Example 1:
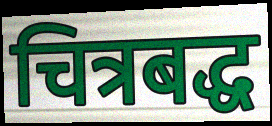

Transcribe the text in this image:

चित्रबद्ध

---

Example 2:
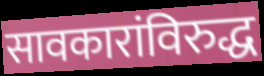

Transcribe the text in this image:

सावकारांविरुद्ध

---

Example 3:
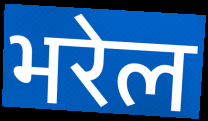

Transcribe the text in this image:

भरेल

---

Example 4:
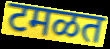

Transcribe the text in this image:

टमळत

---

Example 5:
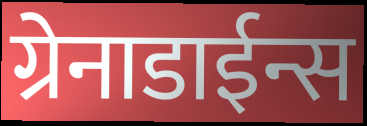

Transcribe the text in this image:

ग्रेनाडाईन्स